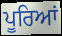
ਪੂਰਿਆਂ